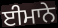
ਈਮਾਨੇ